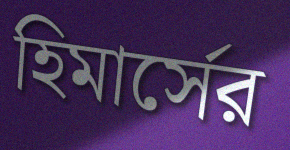
হিমার্সের